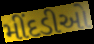
મીંદડીઓ